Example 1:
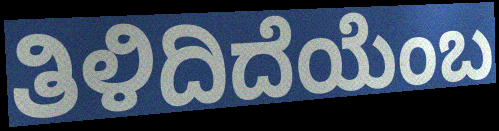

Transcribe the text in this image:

ತಿಳಿದಿದೆಯೆಂಬ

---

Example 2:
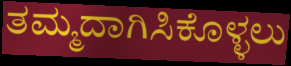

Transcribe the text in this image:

ತಮ್ಮದಾಗಿಸಿಕೊಳ್ಳಲು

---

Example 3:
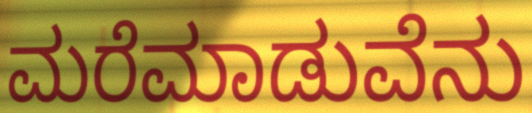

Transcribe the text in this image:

ಮರೆಮಾಡುವೆನು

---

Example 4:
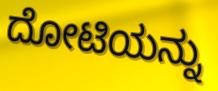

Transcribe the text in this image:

ದೋಟಿಯನ್ನು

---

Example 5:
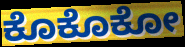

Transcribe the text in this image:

ಕೊಕೊಕೋ